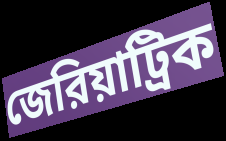
জেরিয়াট্রিক